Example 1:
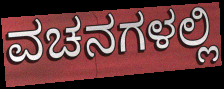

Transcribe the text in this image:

ವಚನಗಳಲ್ಲಿ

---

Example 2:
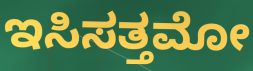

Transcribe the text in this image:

ಇಸಿಸತ್ತಮೋ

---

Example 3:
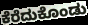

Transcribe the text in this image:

ಕೆರೆದುಕೊಂಡು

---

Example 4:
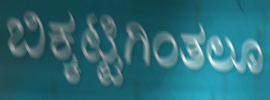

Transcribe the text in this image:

ಬಿಕ್ಕಟ್ಟಿಗಿಂತಲೂ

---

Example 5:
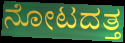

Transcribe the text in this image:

ನೋಟದತ್ತ